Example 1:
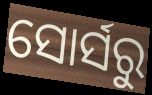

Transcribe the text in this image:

ସୋର୍ସରୁ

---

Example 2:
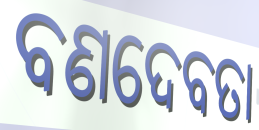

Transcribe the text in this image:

ବଣଦେବତା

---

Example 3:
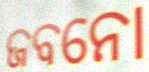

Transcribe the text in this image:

ଜବନୋ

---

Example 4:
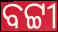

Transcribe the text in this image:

ବଟ୍ଟୀ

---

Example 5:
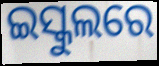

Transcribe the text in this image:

ଇସ୍କୁଲରେ